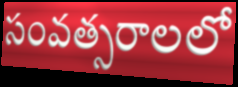
సంవత్సరాలలో